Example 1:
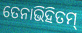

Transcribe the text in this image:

ତେନାଭିହିତମ୍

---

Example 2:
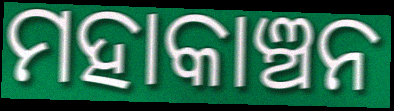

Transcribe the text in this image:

ମହାକାଞ୍ଚନ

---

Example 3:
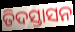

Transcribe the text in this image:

ତିଦସ୍ତାସନ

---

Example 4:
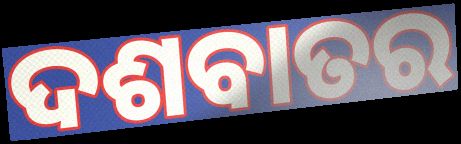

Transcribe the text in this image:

ଦଶବାତର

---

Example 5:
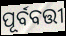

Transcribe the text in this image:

ପୂର୍ବବତ୍ତୀ